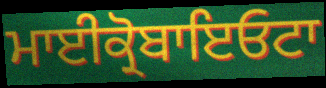
ਮਾਈਕ੍ਰੋਬਾਇਓਟਾ